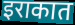
इराकात